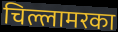
चिल्लामरका